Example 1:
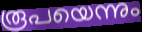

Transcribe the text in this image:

രൂപയെന്നും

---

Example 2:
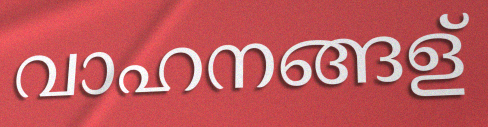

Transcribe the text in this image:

വാഹനങ്ങള്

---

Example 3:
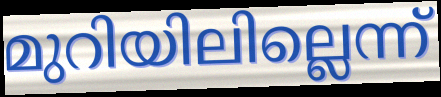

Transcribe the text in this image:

മുറിയിലില്ലെന്ന്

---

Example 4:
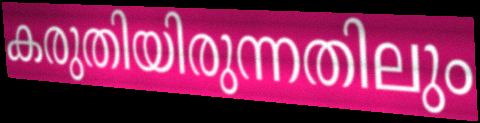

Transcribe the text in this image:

കരുതിയിരുന്നതിലും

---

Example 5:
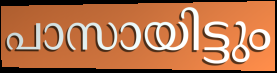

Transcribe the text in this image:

പാസായിട്ടും